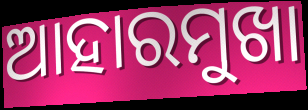
ଆହାରମୁଖା